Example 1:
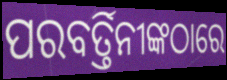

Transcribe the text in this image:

ପରବର୍ତ୍ତିନୀଙ୍କଠାରେ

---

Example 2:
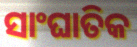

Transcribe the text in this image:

ସାଂଘାତିକ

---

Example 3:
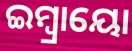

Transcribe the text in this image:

ଇମ୍ବ୍ରାୟୋ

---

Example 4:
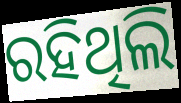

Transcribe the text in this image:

ରହିଥିଲି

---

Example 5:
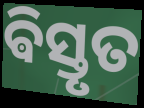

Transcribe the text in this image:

ଵିସ୍ତୃତ